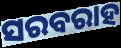
ସରବରାହ